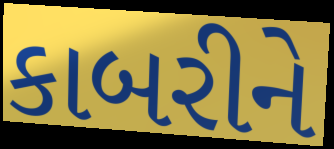
કાબરીને